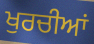
ਖੁਰਚੀਆਂ